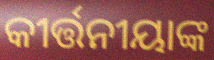
କୀର୍ତ୍ତନୀୟାଙ୍କ